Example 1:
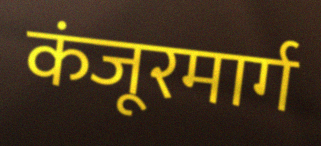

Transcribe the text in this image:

कंजूरमार्ग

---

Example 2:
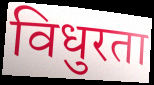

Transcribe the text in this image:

विधुरता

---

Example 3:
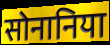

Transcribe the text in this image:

सोनानिया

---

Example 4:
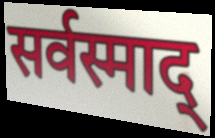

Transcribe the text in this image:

सर्वस्माद्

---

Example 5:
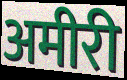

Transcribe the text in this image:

अमीरी